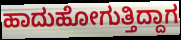
ಹಾದುಹೋಗುತ್ತಿದ್ದಾಗ